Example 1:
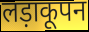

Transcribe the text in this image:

लड़ाकूपन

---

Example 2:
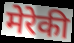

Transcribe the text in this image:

मेरेकी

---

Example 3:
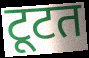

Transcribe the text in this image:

टूटत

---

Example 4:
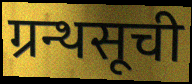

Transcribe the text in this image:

ग्रन्थसूची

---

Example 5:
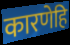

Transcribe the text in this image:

कारणेहि